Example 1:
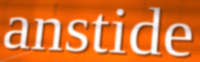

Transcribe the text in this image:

anstide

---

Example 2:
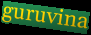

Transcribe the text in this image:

guruvina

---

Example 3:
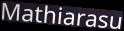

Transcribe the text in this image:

Mathiarasu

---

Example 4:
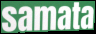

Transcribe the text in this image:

samata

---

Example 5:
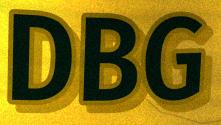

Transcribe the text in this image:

DBG